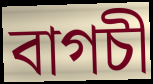
বাগচী